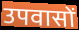
उपवासों